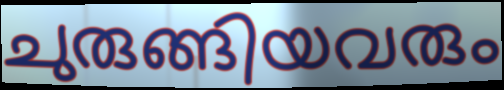
ചുരുങ്ങിയവരും